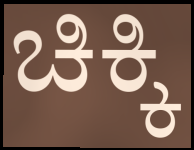
ಚಿಕ್ಕಿ